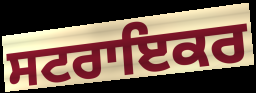
ਸਟਰਾਇਕਰ